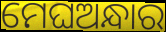
ମେଘଅନ୍ଧାର